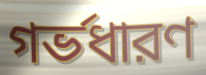
গর্ভধারণ